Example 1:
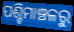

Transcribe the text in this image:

ପଶ୍ଚିମାଞ୍ଚଳରୁ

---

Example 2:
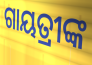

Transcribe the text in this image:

ଗାୟତ୍ରୀଙ୍କ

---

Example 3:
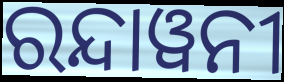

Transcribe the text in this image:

ରନ୍ଦାୱନୀ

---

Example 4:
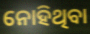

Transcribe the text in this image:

ନୋହିଥିବା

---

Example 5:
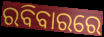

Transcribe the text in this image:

ରବିବାରରେ